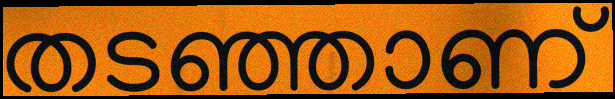
തടഞ്ഞാണ്